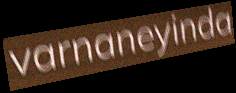
varnaneyinda